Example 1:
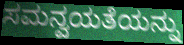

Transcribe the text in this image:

ಸಮನ್ವಯತೆಯನ್ನು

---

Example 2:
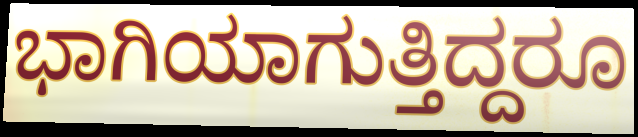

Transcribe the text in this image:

ಭಾಗಿಯಾಗುತ್ತಿದ್ದರೂ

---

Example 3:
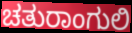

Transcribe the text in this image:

ಚತುರಾಂಗುಲಿ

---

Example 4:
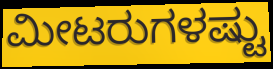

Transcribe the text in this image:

ಮೀಟರುಗಳಷ್ಟು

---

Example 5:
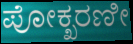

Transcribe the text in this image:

ಪೋಕ್ಖರಣೀ